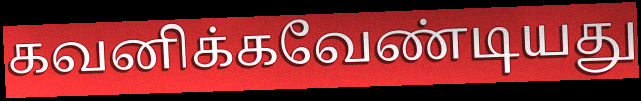
கவனிக்கவேண்டியது